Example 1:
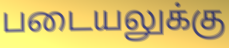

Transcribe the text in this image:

படையலுக்கு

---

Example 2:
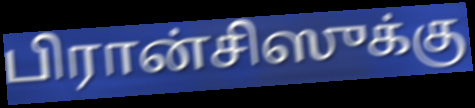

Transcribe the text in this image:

பிரான்சிஸுக்கு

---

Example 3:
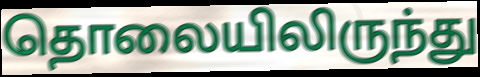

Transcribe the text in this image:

தொலையிலிருந்து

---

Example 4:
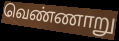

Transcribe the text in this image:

வெண்ணாறு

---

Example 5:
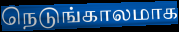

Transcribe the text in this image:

நெடுங்காலமாக